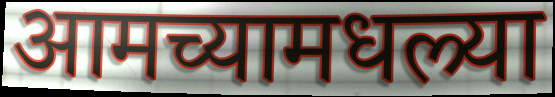
आमच्यामधल्या